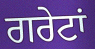
ਗਰੇਟਾਂ